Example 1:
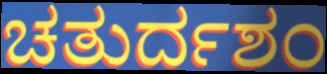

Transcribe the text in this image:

ಚತುರ್ದಶಂ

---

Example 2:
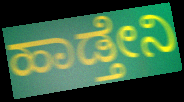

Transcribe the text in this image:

ಹಾಡ್ತೇನಿ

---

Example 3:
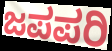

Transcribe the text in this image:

ಜಪಪರಿ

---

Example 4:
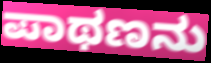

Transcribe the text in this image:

ಪಾಥಣನು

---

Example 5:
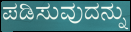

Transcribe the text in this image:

ಪಡಿಸುವುದನ್ನು